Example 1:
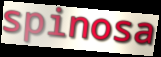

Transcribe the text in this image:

spinosa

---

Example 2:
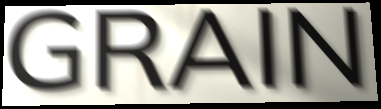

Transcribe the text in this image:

GRAIN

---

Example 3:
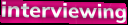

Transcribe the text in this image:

interviewing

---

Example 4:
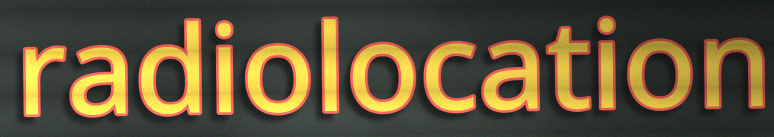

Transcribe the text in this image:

radiolocation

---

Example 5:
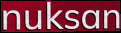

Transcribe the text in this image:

nuksan